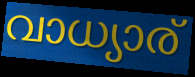
വാധ്യാര്